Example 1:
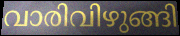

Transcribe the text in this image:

വാരിവിഴുങ്ങി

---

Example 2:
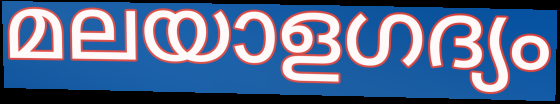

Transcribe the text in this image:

മലയാളഗദ്യം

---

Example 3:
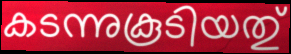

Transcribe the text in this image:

കടന്നുകൂടിയതു്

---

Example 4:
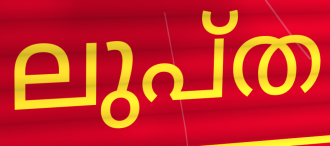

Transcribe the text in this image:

ലുപ്ത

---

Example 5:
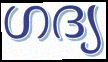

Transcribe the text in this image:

ഗദ്യ